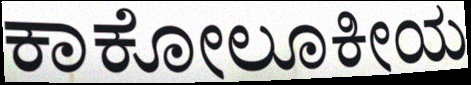
ಕಾಕೋಲೂಕೀಯ